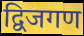
द्विजगण